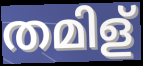
തമിള്